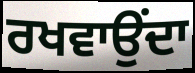
ਰਖਵਾਉਂਦਾ